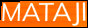
MATAJI